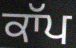
ਕਾੱਪ